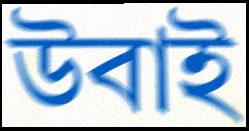
উবাই